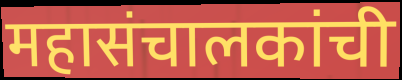
महासंचालकांची